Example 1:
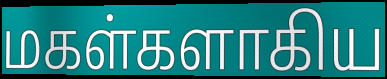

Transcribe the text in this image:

மகள்களாகிய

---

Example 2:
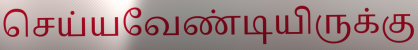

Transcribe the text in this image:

செய்யவேண்டியிருக்கு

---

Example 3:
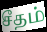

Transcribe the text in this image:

சீதம்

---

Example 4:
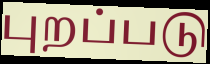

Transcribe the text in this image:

புறப்படு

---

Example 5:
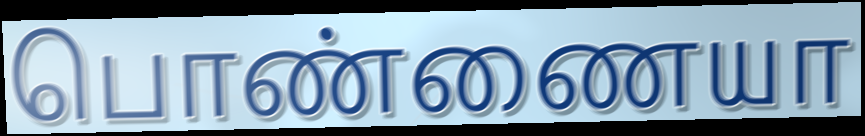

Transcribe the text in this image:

பொண்ணையா